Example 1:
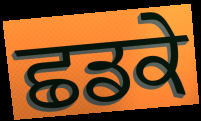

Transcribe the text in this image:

ਛਡਕੇ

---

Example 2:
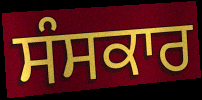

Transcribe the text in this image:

ਸੰਸਕਾਰ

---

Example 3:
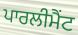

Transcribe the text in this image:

ਪਾਰਲੀਮੈਂਟ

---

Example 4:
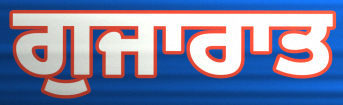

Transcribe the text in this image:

ਗੁਜਾਰਾਤ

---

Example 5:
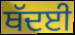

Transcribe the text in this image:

ਥੱਦਈ